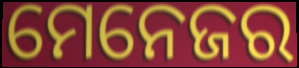
ମେନେଜର